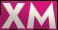
XM